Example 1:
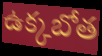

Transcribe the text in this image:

ఉక్కబోత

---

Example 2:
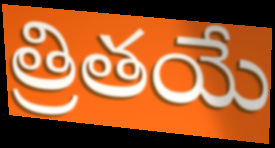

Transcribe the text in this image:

త్రితయే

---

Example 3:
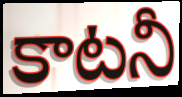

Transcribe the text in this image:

కాటనీ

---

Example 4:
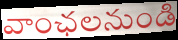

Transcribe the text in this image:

వాంఛలనుండి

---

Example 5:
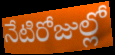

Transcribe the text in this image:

నేటిరోజుల్లో